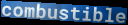
combustible